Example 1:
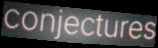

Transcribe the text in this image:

conjectures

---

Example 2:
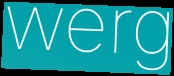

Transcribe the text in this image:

werg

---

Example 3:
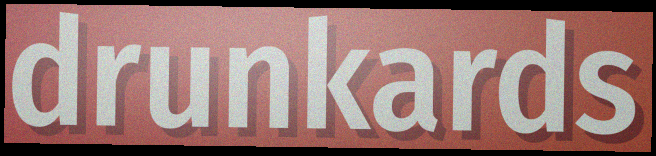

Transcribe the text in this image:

drunkards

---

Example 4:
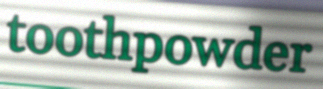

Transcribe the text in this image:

toothpowder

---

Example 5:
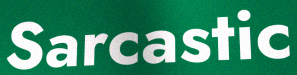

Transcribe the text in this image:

Sarcastic